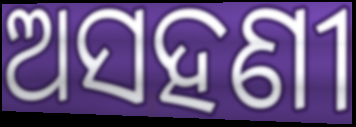
ଅସହଣୀ